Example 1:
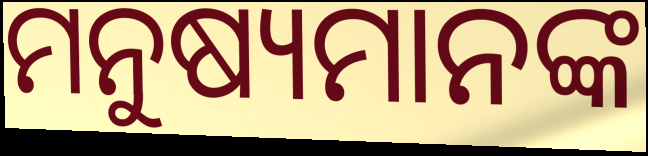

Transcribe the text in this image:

ମନୁଷ୍ୟମାନଙ୍କ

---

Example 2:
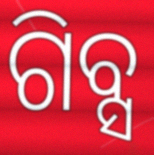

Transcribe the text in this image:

ଗିବ୍ସ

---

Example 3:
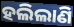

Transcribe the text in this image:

ହଲିଲାଣି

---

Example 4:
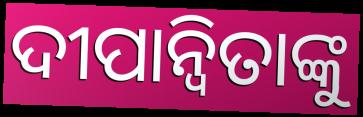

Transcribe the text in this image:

ଦୀପାନ୍ୱିତାଙ୍କୁ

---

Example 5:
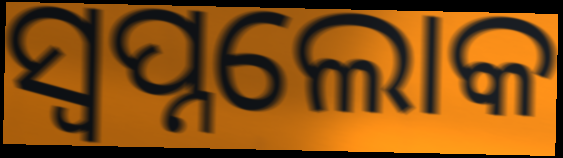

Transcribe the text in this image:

ସ୍ୱପ୍ନଲୋକ